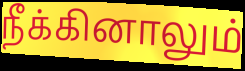
நீக்கினாலும்